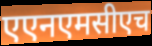
एएनएमसीएच